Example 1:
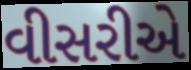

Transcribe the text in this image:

વીસરીએ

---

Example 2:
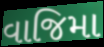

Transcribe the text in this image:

વાજિમા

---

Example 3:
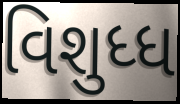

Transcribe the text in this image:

વિશુધ્ધ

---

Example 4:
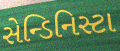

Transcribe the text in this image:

સેન્ડિનિસ્ટા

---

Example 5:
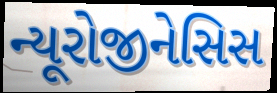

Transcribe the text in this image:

ન્યૂરોજીનેસિસ